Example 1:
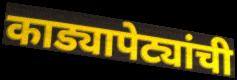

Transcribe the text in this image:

काड्यापेट्यांची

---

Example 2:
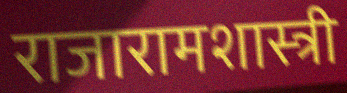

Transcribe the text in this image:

राजारामशास्त्री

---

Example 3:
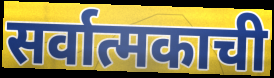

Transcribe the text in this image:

सर्वात्मकाची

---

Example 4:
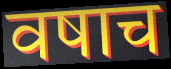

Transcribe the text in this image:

वषाच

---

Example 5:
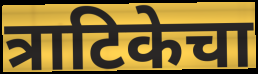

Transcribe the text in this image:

त्राटिकेचा